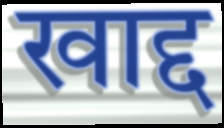
खाद्द